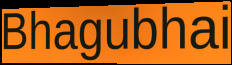
Bhagubhai